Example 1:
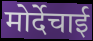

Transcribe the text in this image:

मोर्देचाई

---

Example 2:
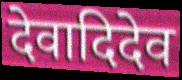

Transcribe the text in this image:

देवादिदेव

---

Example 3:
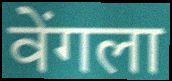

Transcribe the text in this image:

वेंगला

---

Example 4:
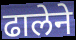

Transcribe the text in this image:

ढालेने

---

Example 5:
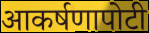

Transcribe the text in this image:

आकर्षणापोटी